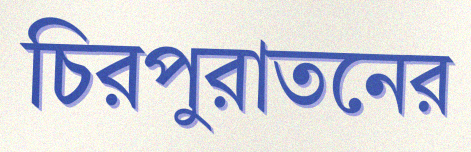
চিরপুরাতনের